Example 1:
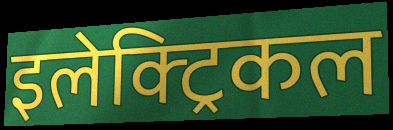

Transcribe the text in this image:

इलेक्ट्रिकल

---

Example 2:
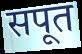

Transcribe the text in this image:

सपूत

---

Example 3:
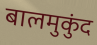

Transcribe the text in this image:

बालमुकुंद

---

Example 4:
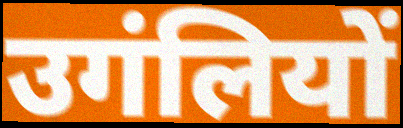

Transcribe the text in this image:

उगंलियों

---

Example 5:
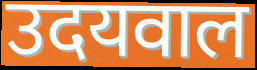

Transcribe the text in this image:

उदयवाल